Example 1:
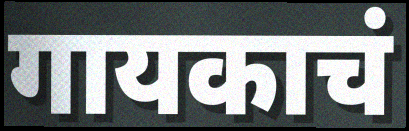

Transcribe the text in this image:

गायकाचं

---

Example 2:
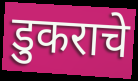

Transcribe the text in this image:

डुकराचे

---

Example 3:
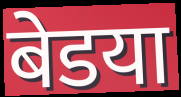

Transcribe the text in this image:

बेडया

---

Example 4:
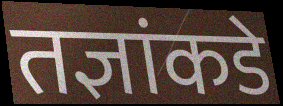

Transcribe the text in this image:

तज्ञांकडे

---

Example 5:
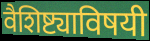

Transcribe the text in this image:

वैशिष्ट्याविषयी